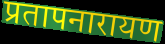
प्रतापनारायण